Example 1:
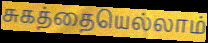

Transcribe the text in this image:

சுகத்தையெல்லாம்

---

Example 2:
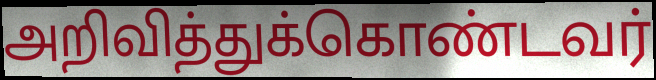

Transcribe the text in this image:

அறிவித்துக்கொண்டவர்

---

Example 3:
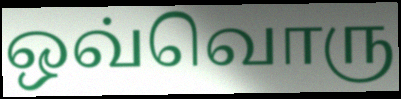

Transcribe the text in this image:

ஒவ்வொரு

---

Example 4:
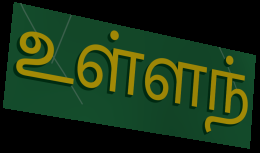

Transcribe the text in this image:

உள்ளந்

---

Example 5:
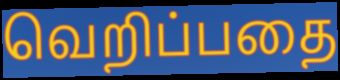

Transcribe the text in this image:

வெறிப்பதை